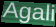
Agali